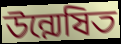
উন্মেষিত